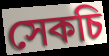
সেকচি